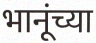
भानूंच्या